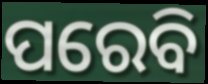
ପରେବି